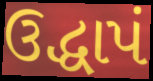
ઉદ્ધાપં